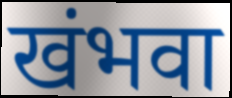
खंभवा